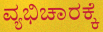
ವ್ಯಭಿಚಾರಕ್ಕೆ